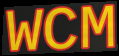
WCM